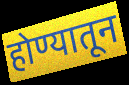
होण्यातून